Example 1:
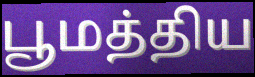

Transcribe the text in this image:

பூமத்திய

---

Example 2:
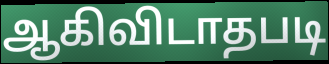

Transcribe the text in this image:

ஆகிவிடாதபடி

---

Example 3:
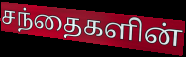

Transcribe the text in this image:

சந்தைகளின்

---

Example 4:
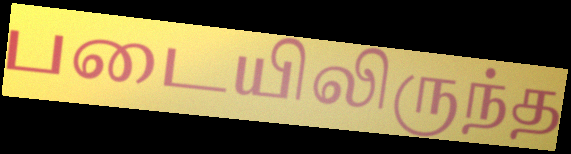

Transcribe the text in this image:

படையிலிருந்த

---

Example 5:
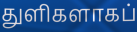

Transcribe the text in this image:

துளிகளாகப்